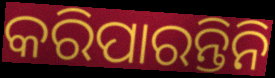
କରିପାରନ୍ତିନି